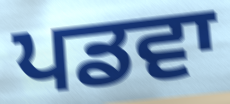
ਪਡਵਾ